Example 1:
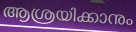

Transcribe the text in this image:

ആശ്രയിക്കാനും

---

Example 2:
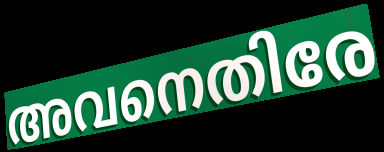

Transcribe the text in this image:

അവനെതിരേ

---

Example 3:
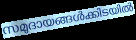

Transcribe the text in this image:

സമുദായങ്ങൾക്കിടയിൽ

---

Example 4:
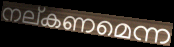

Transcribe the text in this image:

നല്കണമെന്ന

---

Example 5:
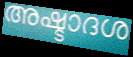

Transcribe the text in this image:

അഷ്ടാദശ